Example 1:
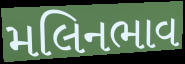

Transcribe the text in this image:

મલિનભાવ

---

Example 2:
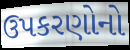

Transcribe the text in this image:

ઉપકરણોનો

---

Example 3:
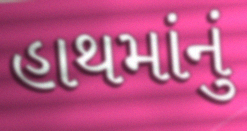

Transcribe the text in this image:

હાથમાંનું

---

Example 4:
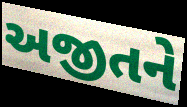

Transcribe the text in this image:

અજીતને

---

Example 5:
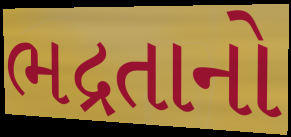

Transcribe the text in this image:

ભદ્રતાનો